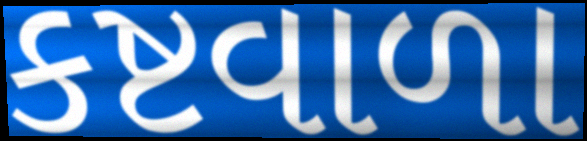
કષ્ટવાળા